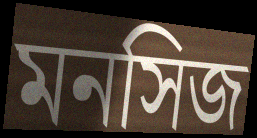
মনসিজ